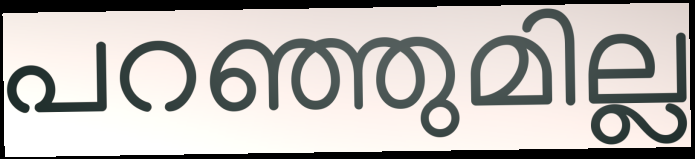
പറഞ്ഞുമില്ല